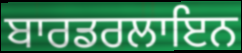
ਬਾਰਡਰਲਾਇਨ